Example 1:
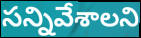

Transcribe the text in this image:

సన్నివేశాలని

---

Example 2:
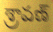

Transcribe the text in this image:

శ్రావణ్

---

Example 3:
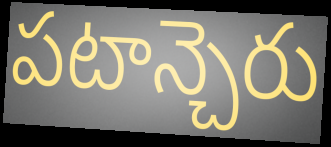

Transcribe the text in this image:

పటాన్చెరు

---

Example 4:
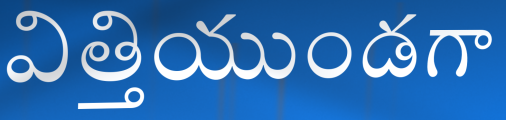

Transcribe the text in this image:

విత్తియుండగా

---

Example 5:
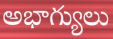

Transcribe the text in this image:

అభాగ్యులు